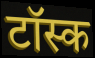
टॉस्‍क